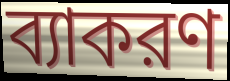
ব্যাকরণ